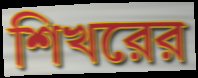
শিখরের